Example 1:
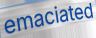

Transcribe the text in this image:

emaciated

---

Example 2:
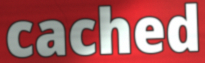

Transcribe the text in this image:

cached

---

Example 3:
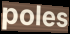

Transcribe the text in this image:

poles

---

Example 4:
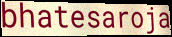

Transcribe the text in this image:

bhatesaroja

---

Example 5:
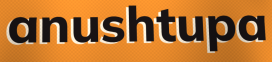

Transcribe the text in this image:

anushtupa